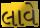
લાવે